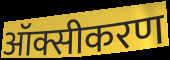
ऑक्सीकरण